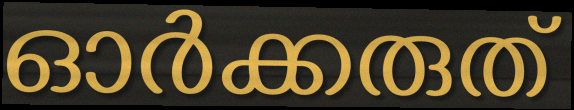
ഓർക്കരുത്